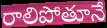
రాలిపోతూనే